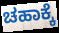
ಚಹಾಕ್ಕೆ